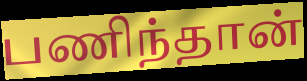
பணிந்தான்